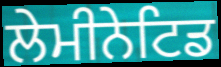
ਲੇਮੀਨੇਟਿਡ